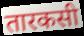
तारकसी